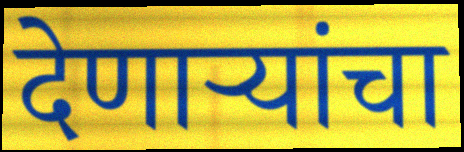
देणाऱ्यांचा